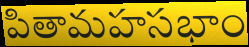
పితామహసభాం